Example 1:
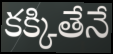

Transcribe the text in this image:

కక్కితేనే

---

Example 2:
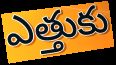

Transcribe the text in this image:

ఎత్తుకు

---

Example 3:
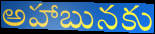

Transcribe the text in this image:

అహాబునకు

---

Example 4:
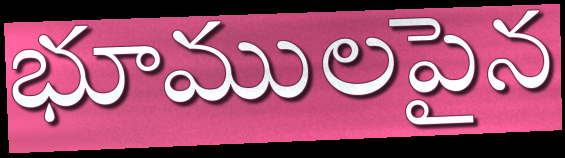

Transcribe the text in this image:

భూములపైన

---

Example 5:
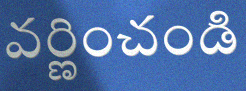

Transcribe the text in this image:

వర్ణించండి